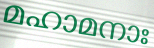
മഹാമനാഃ